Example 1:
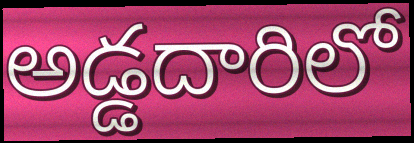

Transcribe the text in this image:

అడ్డదారిలో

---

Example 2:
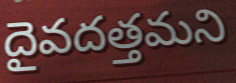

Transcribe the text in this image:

దైవదత్తమని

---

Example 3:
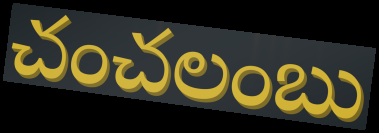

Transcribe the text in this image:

చంచలంబు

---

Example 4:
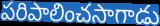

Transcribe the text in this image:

పరిపాలించసాగాడు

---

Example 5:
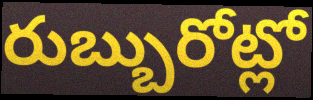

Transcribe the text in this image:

రుబ్బురోట్లో